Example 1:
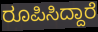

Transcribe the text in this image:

ರೂಪಿಸಿದ್ದಾರೆ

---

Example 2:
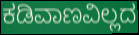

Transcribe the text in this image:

ಕಡಿವಾಣವಿಲ್ಲದ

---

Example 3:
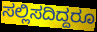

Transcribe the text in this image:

ಸಲ್ಲಿಸದಿದ್ದರೂ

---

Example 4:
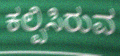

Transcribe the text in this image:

ಕಲ್ಪಿಸಿರುವ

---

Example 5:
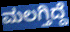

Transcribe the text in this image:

ಮಲಗ್ತಿದ್ದೆ